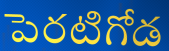
పెరటిగోడ